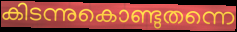
കിടന്നുകൊണ്ടുതന്നെ